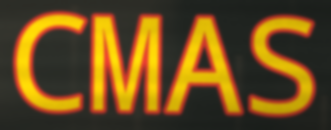
CMAS